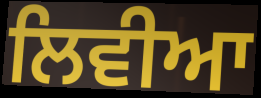
ਲਿਵੀਆ